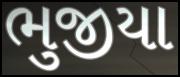
ભુજીયા